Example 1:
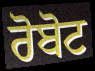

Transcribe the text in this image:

ਰੋਬੋਟ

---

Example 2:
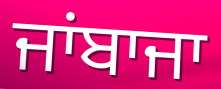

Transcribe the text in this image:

ਜਾਂਬਾਜਾ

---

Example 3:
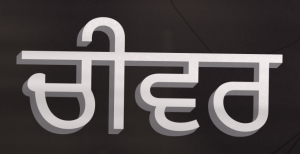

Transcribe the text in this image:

ਚੀਵਰ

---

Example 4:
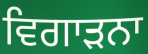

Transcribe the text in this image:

ਵਿਗਾੜਨਾ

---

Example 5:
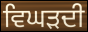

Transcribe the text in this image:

ਵਿਘੜਦੀ